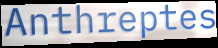
Anthreptes